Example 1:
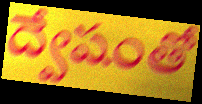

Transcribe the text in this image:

ద్వేషంతో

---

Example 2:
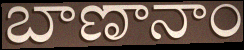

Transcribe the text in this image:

బాణానాం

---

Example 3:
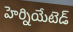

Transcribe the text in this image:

హెర్నియేటెడ్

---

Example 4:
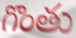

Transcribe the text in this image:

గొంతు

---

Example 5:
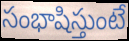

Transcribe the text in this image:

సంభాషిస్తుంటే